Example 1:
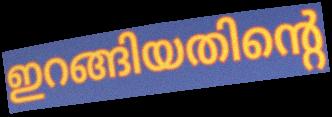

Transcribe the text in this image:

ഇറങ്ങിയതിന്റെ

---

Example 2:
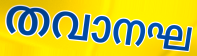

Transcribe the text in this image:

തവാനഘ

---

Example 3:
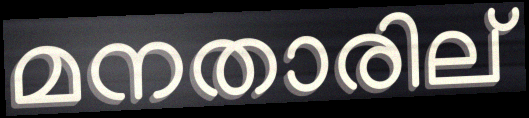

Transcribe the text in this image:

മനതാരില്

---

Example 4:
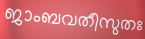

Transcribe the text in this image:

ജാംബവതീസുതഃ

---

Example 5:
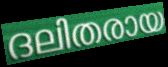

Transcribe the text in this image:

ദലിതരായ